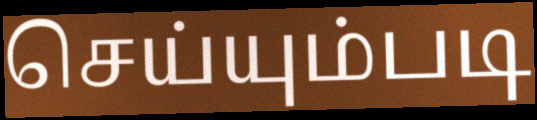
செய்யும்படி